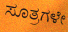
ಸೂತ್ರಗಳೇ